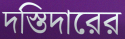
দস্তিদারের